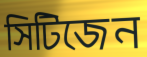
সিটিজেন